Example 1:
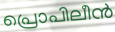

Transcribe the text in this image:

പ്രൊപിലീൻ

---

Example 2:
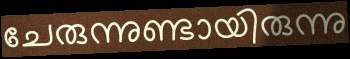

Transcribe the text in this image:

ചേരുന്നുണ്ടായിരുന്നു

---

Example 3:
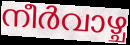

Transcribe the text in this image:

നീർവാഴ്ച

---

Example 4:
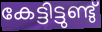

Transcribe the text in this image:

കേട്ടിട്ടുണ്ടു്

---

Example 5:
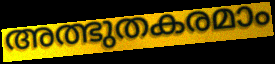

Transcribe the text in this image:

അത്ഭുതകരമാം